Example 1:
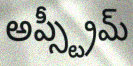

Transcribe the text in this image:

అప్స్ట్రీమ్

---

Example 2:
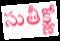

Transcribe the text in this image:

సుతీక్ష్ణో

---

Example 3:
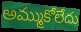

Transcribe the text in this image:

అమ్ముకోలేదు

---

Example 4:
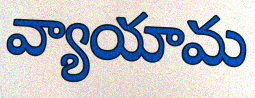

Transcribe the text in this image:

వ్యాయామ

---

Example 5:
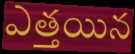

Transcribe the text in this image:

ఎత్తయిన